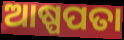
ଆଷ୍ପପତା